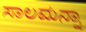
ಸಾಲಮನ್ನಾ